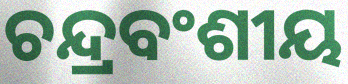
ଚନ୍ଦ୍ରବଂଶୀୟ